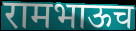
रामभाऊच